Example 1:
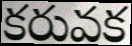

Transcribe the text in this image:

కరువక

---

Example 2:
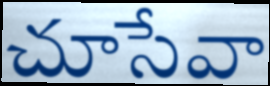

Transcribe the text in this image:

చూసేవా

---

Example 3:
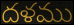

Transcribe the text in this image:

దళము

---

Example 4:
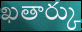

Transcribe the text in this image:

ఖతార్కు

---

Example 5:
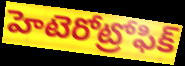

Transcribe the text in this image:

హెటెరోట్రోఫిక్